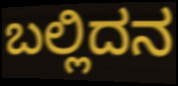
ಬಲ್ಲಿದನ